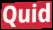
Quid